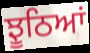
ਝੂਠਿਆਂ